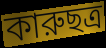
কারুছত্র